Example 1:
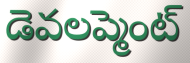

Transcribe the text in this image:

డెవలప్మెంట్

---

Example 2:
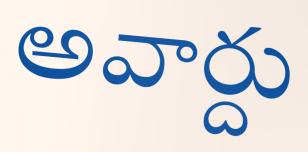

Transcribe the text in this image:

అవార్దు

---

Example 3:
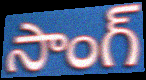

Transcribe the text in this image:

సాంగ్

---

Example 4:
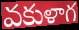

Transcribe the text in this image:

వకుళాగ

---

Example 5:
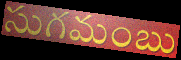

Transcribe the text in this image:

సుగమంబు